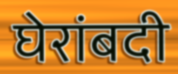
घेरांबदी